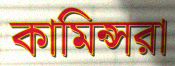
কামিন্সরা